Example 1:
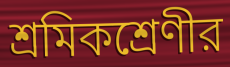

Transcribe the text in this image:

শ্রমিকশ্রেণীর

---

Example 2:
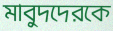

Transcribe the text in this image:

মাবুদদেরকে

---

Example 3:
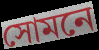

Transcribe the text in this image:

সোমনে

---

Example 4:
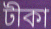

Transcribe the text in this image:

টীকা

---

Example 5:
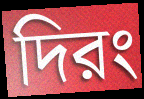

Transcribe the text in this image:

দিরং